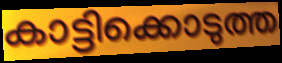
കാട്ടിക്കൊടുത്ത